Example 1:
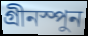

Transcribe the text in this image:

গ্রীনস্পুন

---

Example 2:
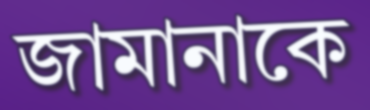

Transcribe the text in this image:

জামানাকে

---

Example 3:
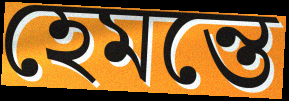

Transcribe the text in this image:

হেমন্তে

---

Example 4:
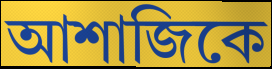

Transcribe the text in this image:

আশাজিকে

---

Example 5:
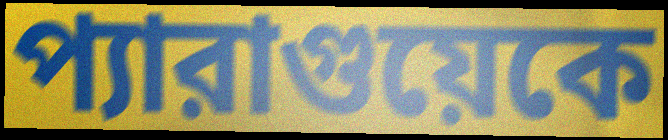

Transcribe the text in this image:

প্যারাগুয়েকে